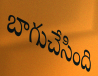
బాగుచేసింది